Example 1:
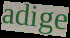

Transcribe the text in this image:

adige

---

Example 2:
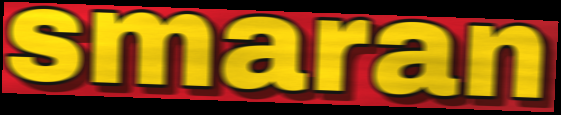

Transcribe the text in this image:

smaran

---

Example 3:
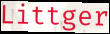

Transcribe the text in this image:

Littger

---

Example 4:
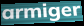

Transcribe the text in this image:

armiger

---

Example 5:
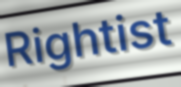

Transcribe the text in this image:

Rightist